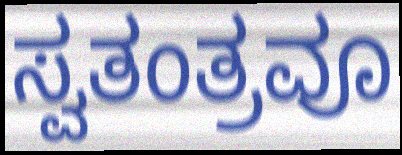
ಸ್ವತಂತ್ರವೂ